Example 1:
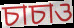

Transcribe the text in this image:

চাচাও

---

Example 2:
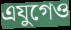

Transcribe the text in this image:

এযুগেও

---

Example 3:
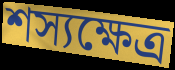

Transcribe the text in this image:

শস্যক্ষেত্র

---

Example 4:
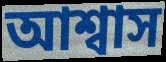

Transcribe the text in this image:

আশ্বাস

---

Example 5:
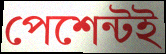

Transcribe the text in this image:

পেশেন্টই